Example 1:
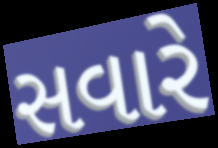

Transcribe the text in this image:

સવારે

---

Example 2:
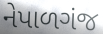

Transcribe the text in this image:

નેપાળગંજ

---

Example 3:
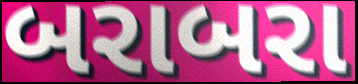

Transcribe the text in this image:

બરાબરા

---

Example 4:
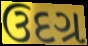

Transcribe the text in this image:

ઉદગ્ર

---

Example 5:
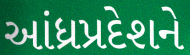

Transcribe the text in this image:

આંધ્રપ્રદેશને